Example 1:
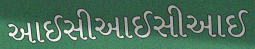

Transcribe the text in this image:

આઈસીઆઈસીઆઈ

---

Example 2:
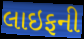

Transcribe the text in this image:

લાઇફની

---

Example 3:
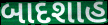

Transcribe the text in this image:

બાદશાહ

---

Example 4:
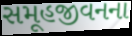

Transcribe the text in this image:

સમૂહજીવનના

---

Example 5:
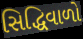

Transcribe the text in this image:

સિદ્ધિવાળો